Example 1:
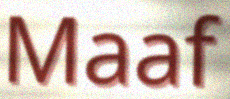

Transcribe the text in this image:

Maaf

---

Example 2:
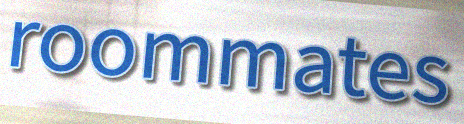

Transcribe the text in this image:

roommates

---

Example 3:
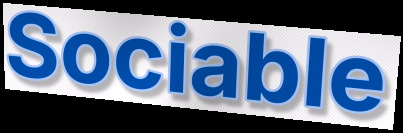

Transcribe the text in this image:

Sociable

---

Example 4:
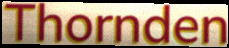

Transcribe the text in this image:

Thornden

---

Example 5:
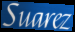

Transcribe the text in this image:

Suarez